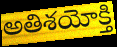
అతిశయోక్తి